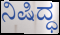
ನಿಷಿದ್ಧ